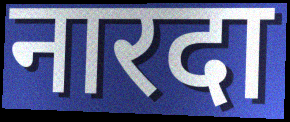
नारदा